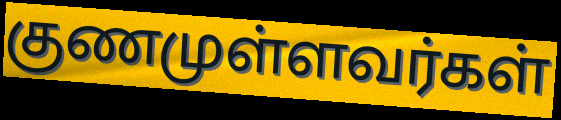
குணமுள்ளவர்கள்